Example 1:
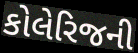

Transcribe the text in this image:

કોલેરિજની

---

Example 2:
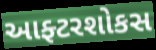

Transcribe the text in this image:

આફ્ટરશોકસ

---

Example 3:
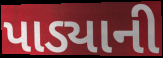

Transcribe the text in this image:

પાડ્યાની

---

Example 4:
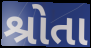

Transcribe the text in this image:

શ્રોતા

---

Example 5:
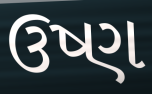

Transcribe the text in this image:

ઉષ્ણ